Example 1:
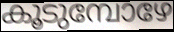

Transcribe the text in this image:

കൂടുമ്പോഴേ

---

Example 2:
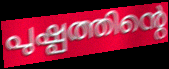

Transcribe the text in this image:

പുഷ്പത്തിന്റെ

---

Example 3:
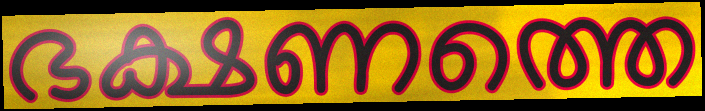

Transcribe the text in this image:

ഭക്ഷണത്തെ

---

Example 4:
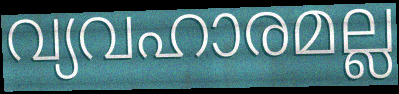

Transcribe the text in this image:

വ്യവഹാരമല്ല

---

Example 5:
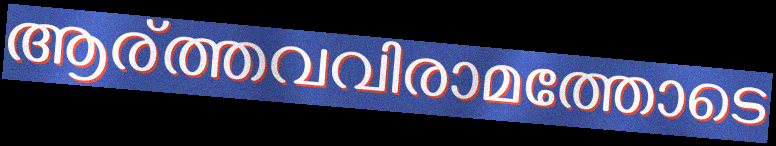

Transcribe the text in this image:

ആര്ത്തവവിരാമത്തോടെ